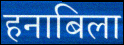
हनाबिला